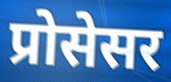
प्रोसेसर